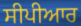
ਸੀਪੀਆਰ